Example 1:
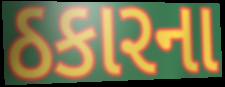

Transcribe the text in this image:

ઠકારના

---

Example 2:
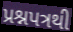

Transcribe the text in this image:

પ્રશ્નપત્રથી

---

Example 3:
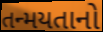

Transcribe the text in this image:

તન્મયતાનો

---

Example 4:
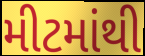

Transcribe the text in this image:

મીટમાંથી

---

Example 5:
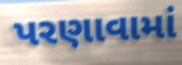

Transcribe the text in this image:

પરણાવામાં